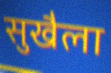
सुखैला